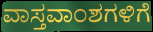
ವಾಸ್ತವಾಂಶಗಳಿಗೆ